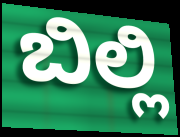
ಬಿಲ್ಲಿ